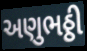
અણુભઠ્ઠી